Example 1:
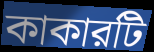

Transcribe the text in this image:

কাকারটি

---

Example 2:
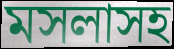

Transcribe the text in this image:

মসলাসহ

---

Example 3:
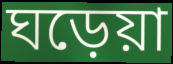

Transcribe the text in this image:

ঘড়েয়া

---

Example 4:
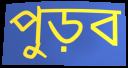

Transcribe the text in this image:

পুড়ব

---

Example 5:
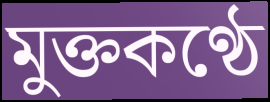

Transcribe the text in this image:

মুক্তকণ্ঠে